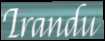
Irandu